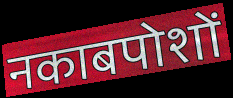
नकाबपोशों